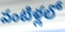
వంటిళ్లలో